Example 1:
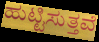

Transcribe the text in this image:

ಹುಟ್ಟಿಸುತ್ತವೆ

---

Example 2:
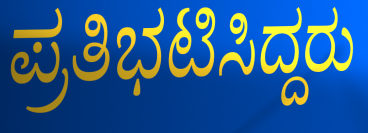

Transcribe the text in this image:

ಪ್ರತಿಭಟಿಸಿದ್ದರು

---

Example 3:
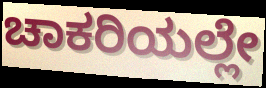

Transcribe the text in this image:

ಚಾಕರಿಯಲ್ಲೇ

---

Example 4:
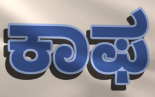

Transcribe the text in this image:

ಕಾಫ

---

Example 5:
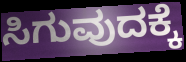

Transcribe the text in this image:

ಸಿಗುವುದಕ್ಕೆ